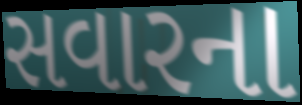
સવારના